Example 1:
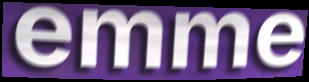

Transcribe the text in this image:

emme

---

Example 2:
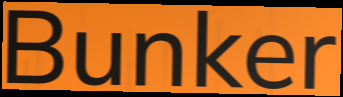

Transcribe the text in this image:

Bunker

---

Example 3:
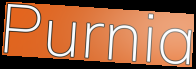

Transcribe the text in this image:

Purnia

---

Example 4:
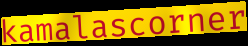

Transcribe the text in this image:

kamalascorner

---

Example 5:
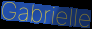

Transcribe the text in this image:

Gabrielle